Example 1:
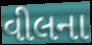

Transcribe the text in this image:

વીલના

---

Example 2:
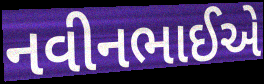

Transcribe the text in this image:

નવીનભાઈએ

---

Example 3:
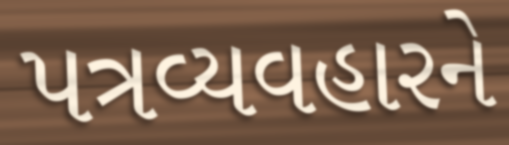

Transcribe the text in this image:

પત્રવ્યવહારને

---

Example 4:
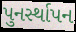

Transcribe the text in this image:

પુનર્સ્થાપન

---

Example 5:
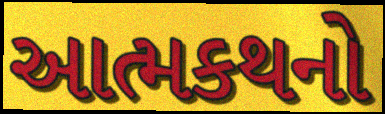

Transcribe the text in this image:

આત્મકથનો